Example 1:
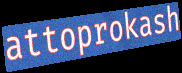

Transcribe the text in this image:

attoprokash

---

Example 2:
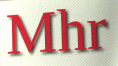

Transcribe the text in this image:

Mhr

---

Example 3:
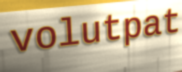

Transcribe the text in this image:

volutpat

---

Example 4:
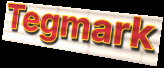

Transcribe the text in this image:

Tegmark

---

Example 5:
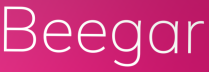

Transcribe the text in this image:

Beegar